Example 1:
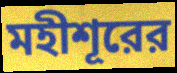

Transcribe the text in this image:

মহীশূরের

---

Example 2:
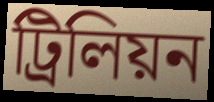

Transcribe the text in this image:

ট্রিলিয়ন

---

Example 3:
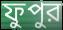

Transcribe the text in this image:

ফুপুর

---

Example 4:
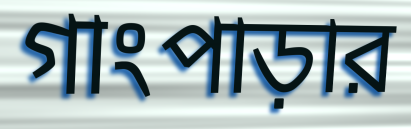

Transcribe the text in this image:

গাংপাড়ার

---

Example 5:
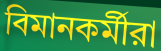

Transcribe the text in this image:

বিমানকর্মীরা